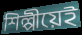
শিল্পীয়েই